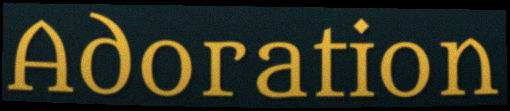
Adoration